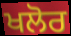
ਖਲੋਰ